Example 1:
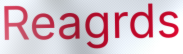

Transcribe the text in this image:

Reagrds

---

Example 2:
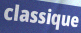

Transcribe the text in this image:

classique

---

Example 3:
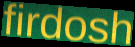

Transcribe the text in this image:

firdosh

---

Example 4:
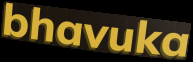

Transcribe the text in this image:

bhavuka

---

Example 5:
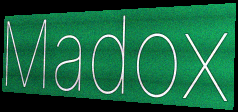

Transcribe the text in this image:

Madox